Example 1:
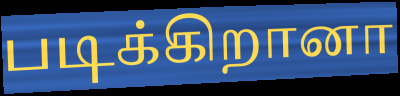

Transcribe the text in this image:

படிக்கிறானா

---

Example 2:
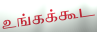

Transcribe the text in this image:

உங்கக்கூட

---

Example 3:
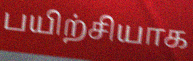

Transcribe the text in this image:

பயிற்சியாக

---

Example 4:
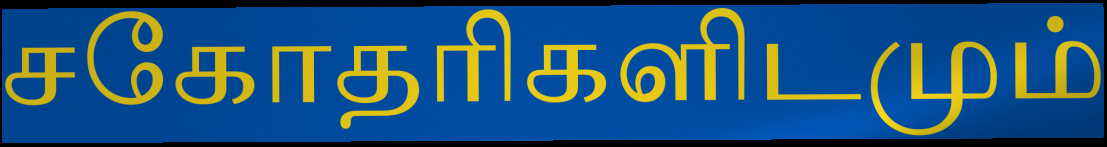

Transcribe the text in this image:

சகோதரிகளிடமும்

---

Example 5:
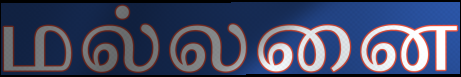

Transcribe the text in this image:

மல்லனை